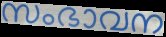
സംഭാവന